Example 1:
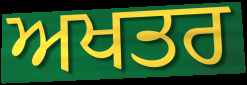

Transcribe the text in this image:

ਅਖਤਰ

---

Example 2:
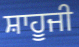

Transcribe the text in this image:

ਸ਼ਾਹੂਜੀ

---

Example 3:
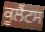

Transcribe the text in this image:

ਕੂਲੈਂਟਸ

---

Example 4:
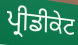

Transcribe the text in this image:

ਪ੍ਰੀਡੀਕੇਟ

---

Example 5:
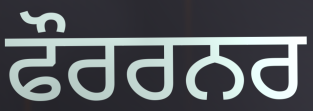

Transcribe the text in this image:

ਫੌਰਰਨਰ